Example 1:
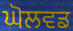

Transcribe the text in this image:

ਘੋਲਵਡ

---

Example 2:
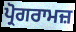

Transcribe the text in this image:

ਪ੍ਰੋਗਰਾਮਜ਼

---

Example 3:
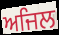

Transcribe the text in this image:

ਅਜਿਲ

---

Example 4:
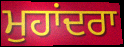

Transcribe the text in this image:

ਮੁਹਾਂਦਰਾ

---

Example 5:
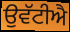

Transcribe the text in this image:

ਉਵੱਟੀਐ